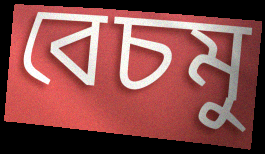
বেচমু